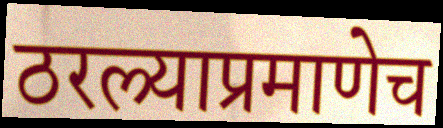
ठरल्याप्रमाणेच